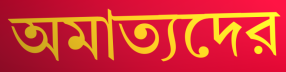
অমাত্যদের